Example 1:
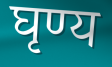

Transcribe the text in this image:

घृण्य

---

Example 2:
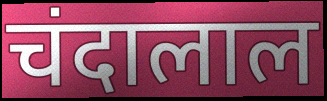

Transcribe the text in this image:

चंदालाल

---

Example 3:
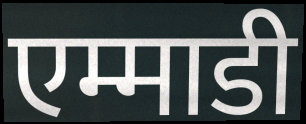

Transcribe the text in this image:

एम्माडी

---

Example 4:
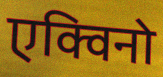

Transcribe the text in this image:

एक्विनो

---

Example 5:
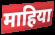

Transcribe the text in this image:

माहिया